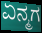
ಏನ್ಮಗ